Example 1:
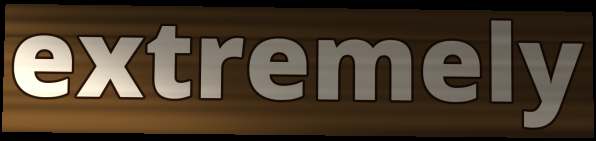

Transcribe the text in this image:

extremely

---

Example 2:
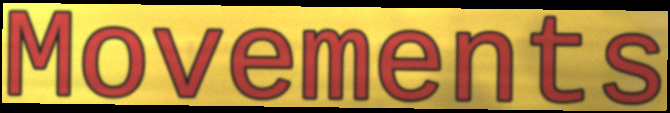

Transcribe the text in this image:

Movements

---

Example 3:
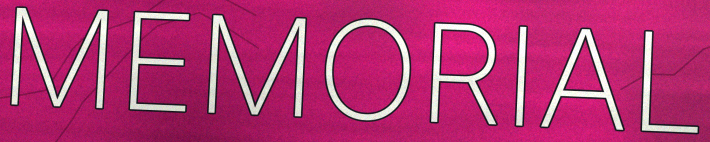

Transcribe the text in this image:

MEMORIAL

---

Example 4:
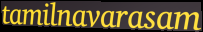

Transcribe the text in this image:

tamilnavarasam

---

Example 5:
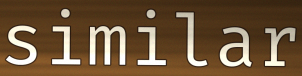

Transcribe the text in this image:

similar